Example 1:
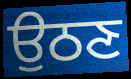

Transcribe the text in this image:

ਉਠਣ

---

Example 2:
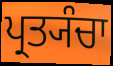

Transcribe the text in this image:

ਪ੍ਰਤ੍ਯੰਚਾ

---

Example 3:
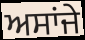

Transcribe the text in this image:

ਅਸਾਂਜੇ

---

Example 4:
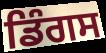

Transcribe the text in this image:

ਡਿੰਗਸ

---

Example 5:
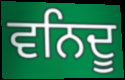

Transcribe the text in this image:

ਵਨਿਦੂ